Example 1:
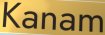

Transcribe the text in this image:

Kanam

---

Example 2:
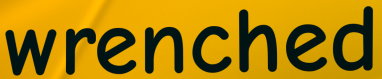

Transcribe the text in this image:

wrenched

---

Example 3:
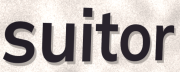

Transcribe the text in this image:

suitor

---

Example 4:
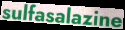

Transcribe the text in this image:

sulfasalazine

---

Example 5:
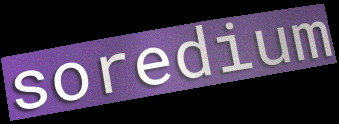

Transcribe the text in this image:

soredium